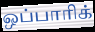
ஒப்பாரிக்